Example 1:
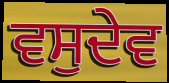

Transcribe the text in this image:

ਵਸੁਦੇਵ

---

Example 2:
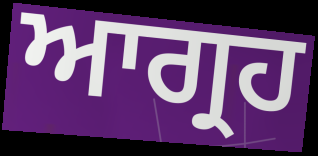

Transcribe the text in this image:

ਆਗ੍ਰਹ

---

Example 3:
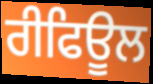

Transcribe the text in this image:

ਰੀਫਿਊਲ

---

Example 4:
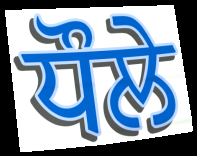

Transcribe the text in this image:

ਧੌਲੇ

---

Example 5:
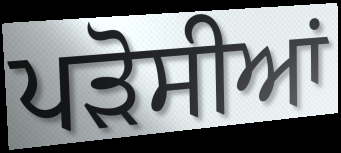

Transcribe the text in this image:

ਪੜੋਸੀਆਂ